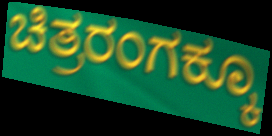
ಚಿತ್ರರಂಗಕ್ಕೂ